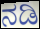
ನಡಿ